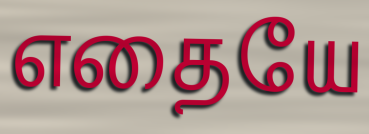
எதையே